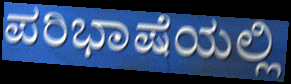
ಪರಿಭಾಷೆಯಲ್ಲಿ